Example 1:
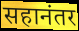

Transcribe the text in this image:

सहानंतर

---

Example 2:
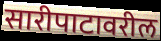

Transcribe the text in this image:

सारीपाटावरील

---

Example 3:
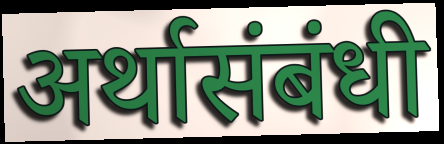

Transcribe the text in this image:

अर्थासंबंधी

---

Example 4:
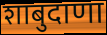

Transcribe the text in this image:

शाबुदाणा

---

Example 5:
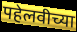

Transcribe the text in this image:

पहेलवीच्या